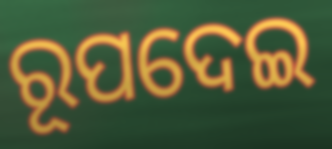
ରୂପଦେଇ